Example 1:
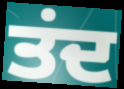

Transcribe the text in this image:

ਤਂਦ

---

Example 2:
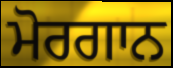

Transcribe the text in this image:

ਮੋਰਗਾਨ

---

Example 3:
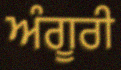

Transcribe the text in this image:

ਅੰਗੂਰੀ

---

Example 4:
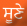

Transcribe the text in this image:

ਸੂਣੇ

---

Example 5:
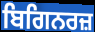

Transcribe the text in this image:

ਬਿਗਿਨਰਜ਼